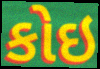
કોઇ